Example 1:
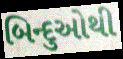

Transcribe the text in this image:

બિન્દુઓથી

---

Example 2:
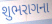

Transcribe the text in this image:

શુભરાગના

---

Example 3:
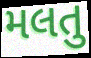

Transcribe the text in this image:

મલતુ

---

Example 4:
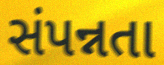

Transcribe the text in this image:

સંપન્નતા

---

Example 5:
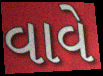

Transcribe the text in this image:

વાવે